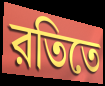
রতিতে